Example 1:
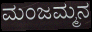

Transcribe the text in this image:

ಮಂಜಮ್ಮನ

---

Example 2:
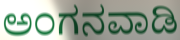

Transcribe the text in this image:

ಅಂಗನವಾಡಿ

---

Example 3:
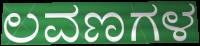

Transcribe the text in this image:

ಲವಣಗಳ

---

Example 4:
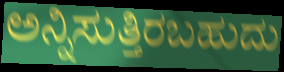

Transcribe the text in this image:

ಅನ್ನಿಸುತ್ತಿರಬಹುದು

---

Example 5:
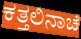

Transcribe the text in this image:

ಕತ್ತಲಿನಾಚೆ